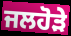
ਜਲਹੋੜੇ